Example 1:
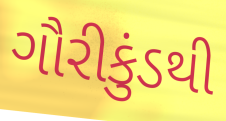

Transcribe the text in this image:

ગૌરીકુંડથી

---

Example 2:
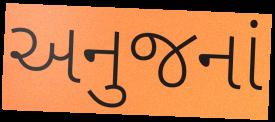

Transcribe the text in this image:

અનુજનાં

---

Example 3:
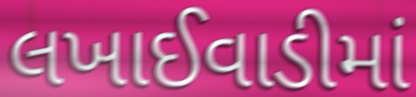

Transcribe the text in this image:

લખાઈવાડીમાં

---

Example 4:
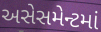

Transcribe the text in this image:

અસેસમેન્ટમાં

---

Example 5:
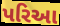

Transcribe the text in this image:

પરિઆ